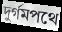
দুর্গমপথে